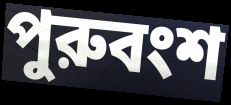
পুরুবংশ